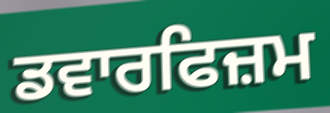
ਡਵਾਰਫਿਜ਼ਮ